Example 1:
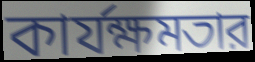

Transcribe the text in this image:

কার্যক্ষমতার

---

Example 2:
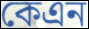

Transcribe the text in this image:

কেএন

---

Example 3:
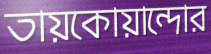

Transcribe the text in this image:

তায়কোয়ান্দোর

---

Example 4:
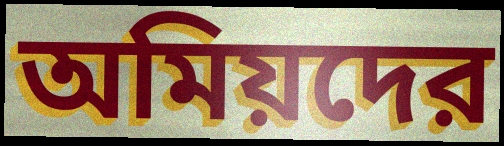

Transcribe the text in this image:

অমিয়দের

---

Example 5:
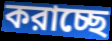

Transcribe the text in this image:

করাচ্ছে